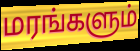
மரங்களும்